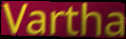
Vartha